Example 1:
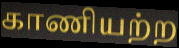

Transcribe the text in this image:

காணியற்ற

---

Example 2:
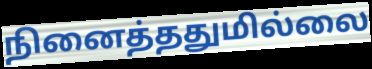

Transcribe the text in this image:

நினைத்ததுமில்லை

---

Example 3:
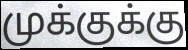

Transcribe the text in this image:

முக்குக்கு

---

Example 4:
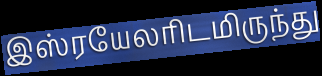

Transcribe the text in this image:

இஸ்ரயேலரிடமிருந்து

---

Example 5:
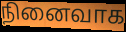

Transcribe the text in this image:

நினைவாக